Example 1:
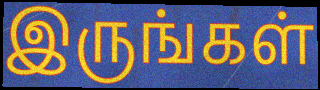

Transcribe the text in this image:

இருங்கள்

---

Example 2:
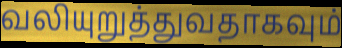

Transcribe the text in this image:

வலியுறுத்துவதாகவும்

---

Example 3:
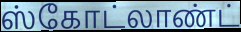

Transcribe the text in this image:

ஸ்கோட்லாண்ட்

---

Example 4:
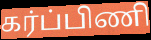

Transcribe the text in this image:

கர்ப்பிணி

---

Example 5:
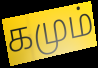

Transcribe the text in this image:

கமும்